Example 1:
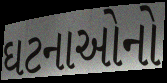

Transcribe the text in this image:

ઘટનાઓનો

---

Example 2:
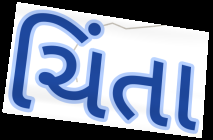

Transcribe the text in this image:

ચિંતા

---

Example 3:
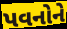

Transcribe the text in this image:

પવનોને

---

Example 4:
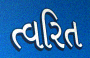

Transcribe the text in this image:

ત્વરિત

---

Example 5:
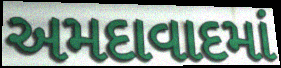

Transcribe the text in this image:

અમદાવાદમાં